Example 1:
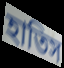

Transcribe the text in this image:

হাতিস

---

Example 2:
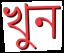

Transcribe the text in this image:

খুন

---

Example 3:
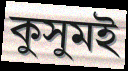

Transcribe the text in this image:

কুসুমই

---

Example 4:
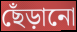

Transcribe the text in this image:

ছেঁড়ানো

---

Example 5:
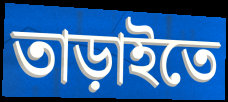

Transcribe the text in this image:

তাড়াইতে